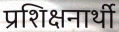
प्रशिक्षनार्थी